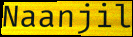
Naanjil